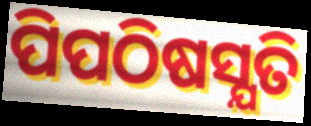
ପିପଠିଷସ୍ଯତି